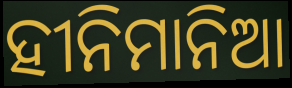
ହୀନିମାନିଆ